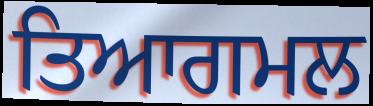
ਤਿਆਗਮਲ